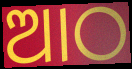
ଆଠ